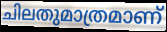
ചിലതുമാത്രമാണ്